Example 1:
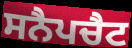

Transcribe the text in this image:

ਸਨੈਪਚੈਟ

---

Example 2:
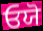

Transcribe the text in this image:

ਓਯੋ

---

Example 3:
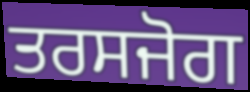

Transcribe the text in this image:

ਤਰਸਜੋਗ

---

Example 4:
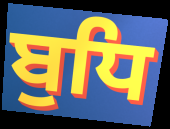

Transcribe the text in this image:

ਬੁਧਿ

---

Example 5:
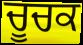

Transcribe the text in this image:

ਚੂਚਕ